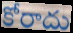
కోరాదు